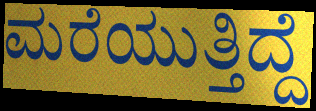
ಮರೆಯುತ್ತಿದ್ದೆ